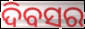
ଦିବସର